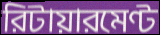
রিটায়ারমেণ্ট